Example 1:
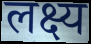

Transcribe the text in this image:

लक्ष्य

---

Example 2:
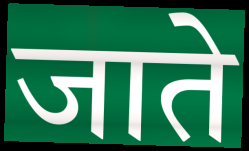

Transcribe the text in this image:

जाते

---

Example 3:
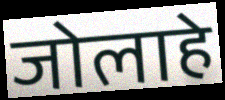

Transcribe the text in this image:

जोलाहे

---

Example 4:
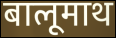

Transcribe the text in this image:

बालूमाथ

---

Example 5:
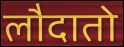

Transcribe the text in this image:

लौदातो